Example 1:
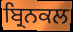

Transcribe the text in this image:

ਬ੍ਰਿਨਕਲ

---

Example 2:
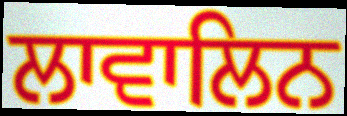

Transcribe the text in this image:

ਲਾਵਾਲਿਨ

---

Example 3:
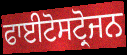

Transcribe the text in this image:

ਫਾਈਟੋਸਟ੍ਰੋਜਨ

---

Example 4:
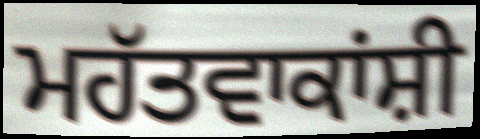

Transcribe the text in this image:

ਮਹੱਤਵਾਕਾਂਸ਼ੀ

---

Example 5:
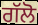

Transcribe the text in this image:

ਗੱਲੋ